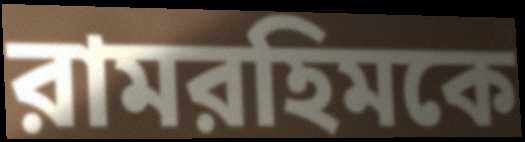
রামরহিমকে